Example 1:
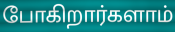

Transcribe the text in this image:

போகிறார்களாம்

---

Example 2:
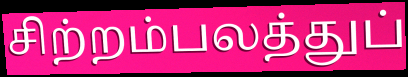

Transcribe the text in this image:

சிற்றம்பலத்துப்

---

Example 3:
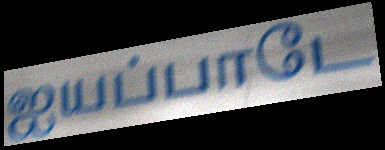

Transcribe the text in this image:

ஐயப்பாடே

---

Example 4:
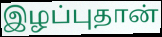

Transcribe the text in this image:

இழப்புதான்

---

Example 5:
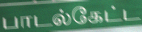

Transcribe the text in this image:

பாடல்கேட்ட